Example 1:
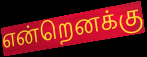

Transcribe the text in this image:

என்றெனக்கு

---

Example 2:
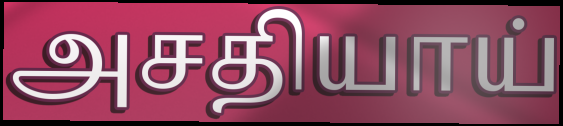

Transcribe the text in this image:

அசதியாய்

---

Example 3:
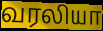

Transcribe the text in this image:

வரலியா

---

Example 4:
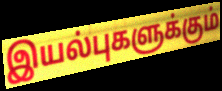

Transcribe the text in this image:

இயல்புகளுக்கும்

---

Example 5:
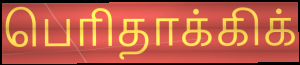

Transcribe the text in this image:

பெரிதாக்கிக்